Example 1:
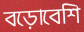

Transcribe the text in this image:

বড়োবেশি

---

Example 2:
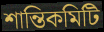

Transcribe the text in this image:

শান্তিকমিটি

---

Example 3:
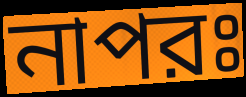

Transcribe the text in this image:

নাপরঃ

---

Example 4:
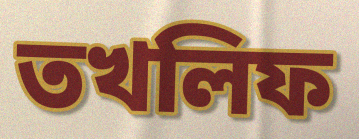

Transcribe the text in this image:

তখলিফ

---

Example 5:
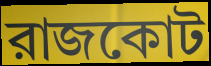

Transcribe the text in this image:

রাজকোট